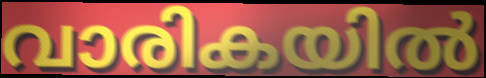
വാരികയിൽ